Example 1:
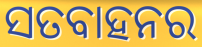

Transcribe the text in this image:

ସତବାହନର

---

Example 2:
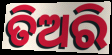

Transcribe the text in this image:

ତିଅରି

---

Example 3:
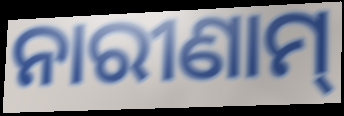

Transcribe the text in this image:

ନାରୀଣାମ୍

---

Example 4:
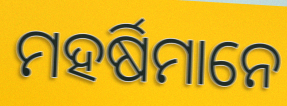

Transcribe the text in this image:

ମହର୍ଷିମାନେ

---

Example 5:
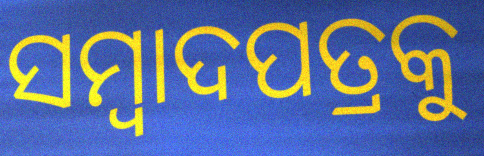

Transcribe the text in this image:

ସମ୍ବାଦପତ୍ରକୁ